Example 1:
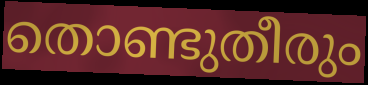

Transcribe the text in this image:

തൊണ്ടുതീരും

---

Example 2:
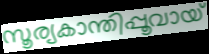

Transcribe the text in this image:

സൂര്യകാന്തിപ്പൂവായ്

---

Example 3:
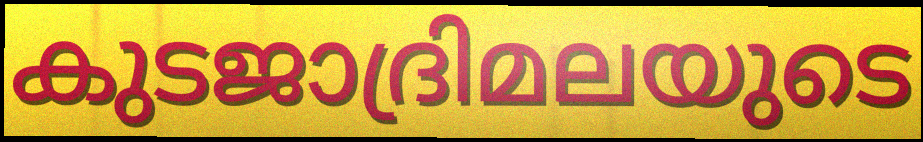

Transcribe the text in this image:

കുടജാദ്രിമലയുടെ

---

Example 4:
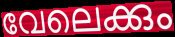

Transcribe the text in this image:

വേലെക്കും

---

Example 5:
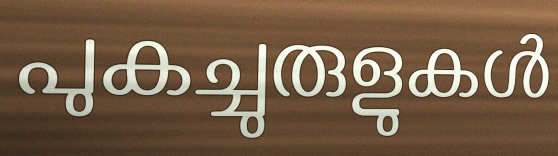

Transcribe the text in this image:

പുകച്ചുരുളുകൾ